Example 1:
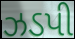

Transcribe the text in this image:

ઝડપી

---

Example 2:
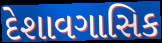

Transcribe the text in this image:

દેશાવગાસિક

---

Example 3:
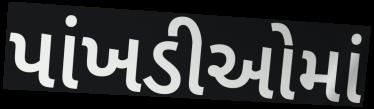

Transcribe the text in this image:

પાંખડીઓમાં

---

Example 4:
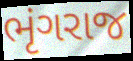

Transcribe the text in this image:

ભૃંગરાજ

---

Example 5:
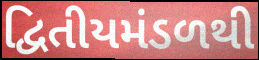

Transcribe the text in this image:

દ્વિતીયમંડળથી